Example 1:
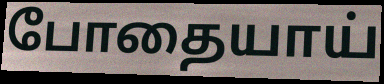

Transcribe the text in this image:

போதையாய்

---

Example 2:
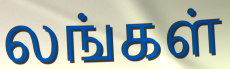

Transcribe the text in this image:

லங்கள்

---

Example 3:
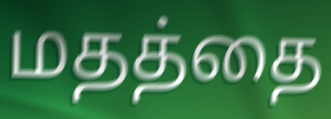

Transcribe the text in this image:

மதத்தை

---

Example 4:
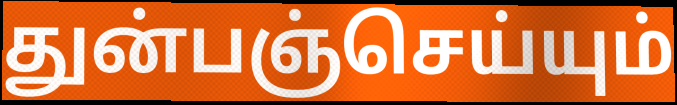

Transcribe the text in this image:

துன்பஞ்செய்யும்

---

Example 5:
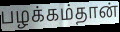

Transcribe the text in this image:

பழக்கம்தான்